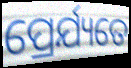
ପ୍ରେର୍ଯ୍ୟତେ